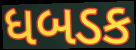
ધબડક